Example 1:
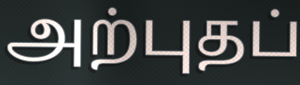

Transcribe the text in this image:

அற்புதப்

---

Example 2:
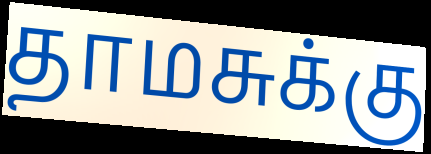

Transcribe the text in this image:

தாமசுக்கு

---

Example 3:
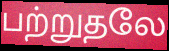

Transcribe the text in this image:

பற்றுதலே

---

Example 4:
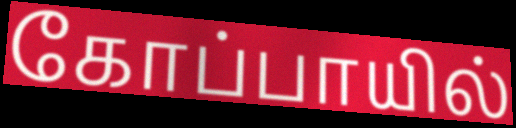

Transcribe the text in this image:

கோப்பாயில்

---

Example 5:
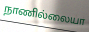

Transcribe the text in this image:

நாணில்லையா